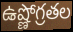
ఉష్ణోగ్రతల